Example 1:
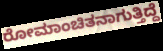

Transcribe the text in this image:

ರೋಮಾಂಚಿತನಾಗುತ್ತಿದ್ದೆ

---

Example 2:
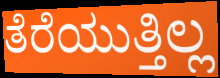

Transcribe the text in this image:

ತೆರೆಯುತ್ತಿಲ್ಲ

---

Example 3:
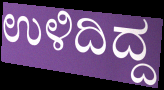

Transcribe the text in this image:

ಉಳಿದಿದ್ದ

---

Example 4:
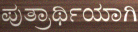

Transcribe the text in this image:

ಪುತ್ರಾರ್ಥಿಯಾಗಿ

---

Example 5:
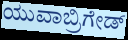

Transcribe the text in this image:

ಯುವಾಬ್ರಿಗೇಡ್